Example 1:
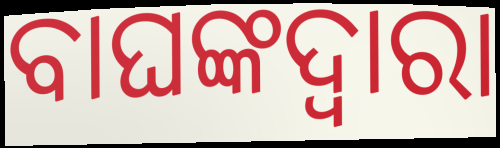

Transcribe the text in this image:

ବାଘଙ୍କଦ୍ୱାରା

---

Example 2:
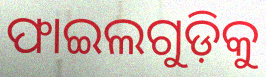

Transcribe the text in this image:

ଫାଇଲଗୁଡ଼ିକୁ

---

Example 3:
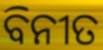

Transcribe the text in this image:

ବିନୀତ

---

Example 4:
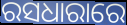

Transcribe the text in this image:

ରସଧାରାରେ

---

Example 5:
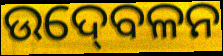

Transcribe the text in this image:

ଉଦ୍‍ବେଳନ